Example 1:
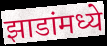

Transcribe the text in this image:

झाडांमध्ये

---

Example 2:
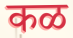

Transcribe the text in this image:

कळ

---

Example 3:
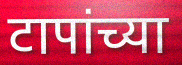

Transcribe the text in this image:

टापांच्या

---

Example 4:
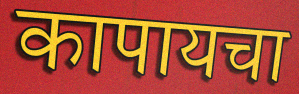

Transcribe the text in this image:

कापायचा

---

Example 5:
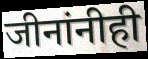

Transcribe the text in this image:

जीनांनीही